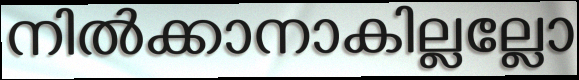
നിൽക്കാനാകില്ലല്ലോ